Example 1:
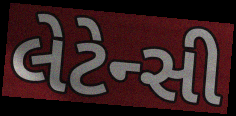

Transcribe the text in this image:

લેટેન્સી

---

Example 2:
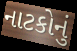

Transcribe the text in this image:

નાટકોનું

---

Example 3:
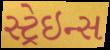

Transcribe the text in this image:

સ્ટ્રેઇન્સ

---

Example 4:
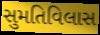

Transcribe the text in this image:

સુમતિવિલાસ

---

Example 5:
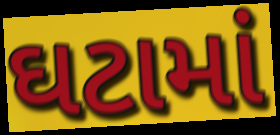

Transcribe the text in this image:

ઘટામાં